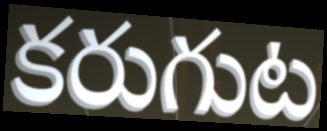
కరుగుట